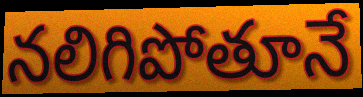
నలిగిపోతూనే